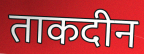
ताकदीन